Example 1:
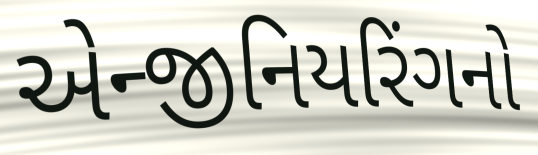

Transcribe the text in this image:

એન્જીનિયરિંગનો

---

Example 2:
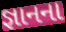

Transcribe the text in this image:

જ્ઞાનના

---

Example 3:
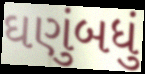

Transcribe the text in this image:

ઘણુંબધું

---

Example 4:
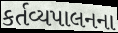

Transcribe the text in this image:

કર્તવ્યપાલનના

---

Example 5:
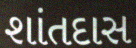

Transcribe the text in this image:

શાંતદાસ